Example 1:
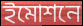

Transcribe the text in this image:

ইমোশনে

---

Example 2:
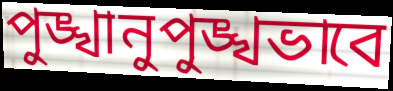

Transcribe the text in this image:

পুঙ্খানুপুঙ্খভাবে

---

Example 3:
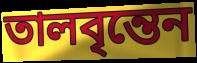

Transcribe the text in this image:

তালবৃন্তেন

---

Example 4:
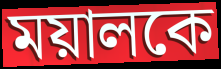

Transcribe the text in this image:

ময়ালকে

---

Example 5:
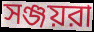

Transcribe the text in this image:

সঞ্জয়রা